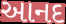
આનદ